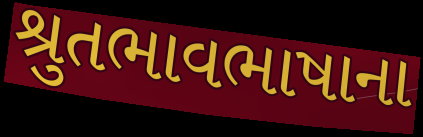
શ્રુતભાવભાષાના